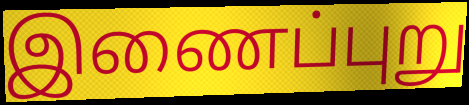
இணைப்புறு